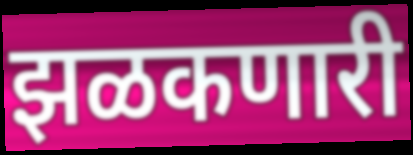
झळकणारी